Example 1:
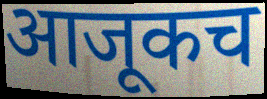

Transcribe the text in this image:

आजूकच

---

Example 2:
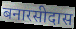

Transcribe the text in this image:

बनारसीदास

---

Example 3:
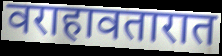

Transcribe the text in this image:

वराहावतारात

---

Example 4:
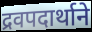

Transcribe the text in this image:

द्रवपदार्थाने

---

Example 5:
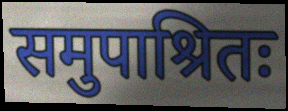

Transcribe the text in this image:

समुपाश्रितः